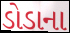
ડોડાના